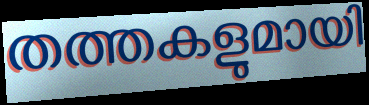
തത്തകളുമായി